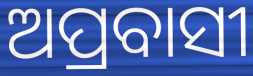
ଅପ୍ରବାସୀ